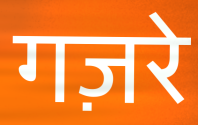
गज़रे